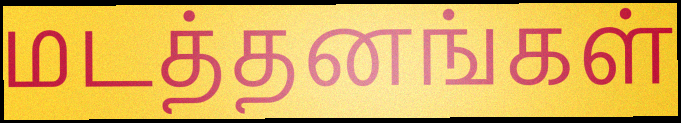
மடத்தனங்கள்